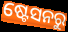
ଷ୍ଟେସନରୁ